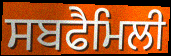
ਸਬਫੈਮਿਲੀ